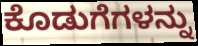
ಕೊಡುಗೆಗಳನ್ನು